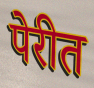
पेरीत